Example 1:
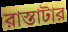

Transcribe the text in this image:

রাস্তাটার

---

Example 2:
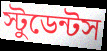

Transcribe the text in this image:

স্টুডেন্টস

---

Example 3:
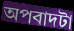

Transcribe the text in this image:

অপবাদটা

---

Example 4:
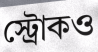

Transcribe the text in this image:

স্ট্রোকও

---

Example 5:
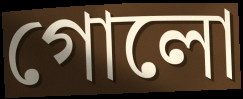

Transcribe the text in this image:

গোলো